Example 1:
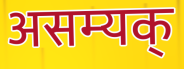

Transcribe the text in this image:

असम्यक्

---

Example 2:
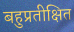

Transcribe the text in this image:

बहुप्रतीक्षित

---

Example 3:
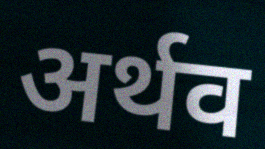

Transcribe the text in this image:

अर्थव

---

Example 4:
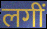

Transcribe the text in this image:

लगीं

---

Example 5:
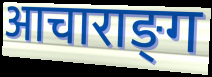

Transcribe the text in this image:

आचाराङ्ग